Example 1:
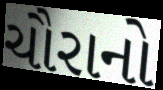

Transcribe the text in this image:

ચૌરાનો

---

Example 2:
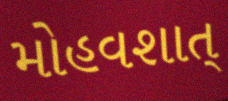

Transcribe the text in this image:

મોહવશાત્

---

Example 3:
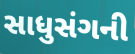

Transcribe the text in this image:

સાધુસંગની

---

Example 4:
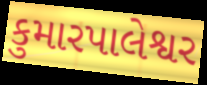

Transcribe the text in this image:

કુમારપાલેશ્વર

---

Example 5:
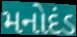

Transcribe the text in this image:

મનોદંડ